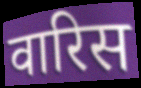
वारिस